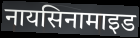
नायसिनामाइड